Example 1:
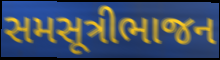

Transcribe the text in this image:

સમસૂત્રીભાજન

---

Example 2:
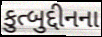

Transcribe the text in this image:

કુત્બુદ્દીનના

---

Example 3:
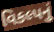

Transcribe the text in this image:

વિકલ્પનું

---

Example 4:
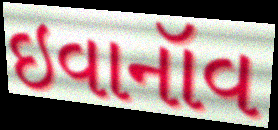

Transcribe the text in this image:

ઇવાનૉવ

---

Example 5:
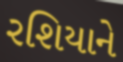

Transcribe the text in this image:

રશિયાને